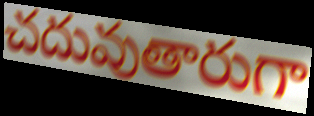
చదువుతారుగా